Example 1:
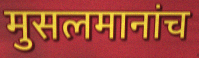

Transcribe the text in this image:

मुसलमानांच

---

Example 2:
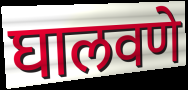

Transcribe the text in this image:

घालवणे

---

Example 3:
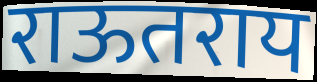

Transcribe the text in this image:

राऊतराय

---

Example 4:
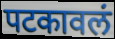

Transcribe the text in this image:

पटकावलं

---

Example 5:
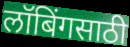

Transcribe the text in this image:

लॉबिंगसाठी